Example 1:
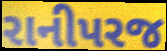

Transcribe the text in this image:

રાનીપરજ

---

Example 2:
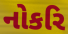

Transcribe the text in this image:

નોકરિ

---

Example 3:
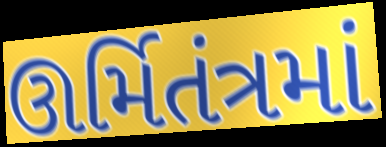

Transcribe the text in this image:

ઊર્મિતંત્રમાં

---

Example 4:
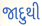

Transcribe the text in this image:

જાદુથી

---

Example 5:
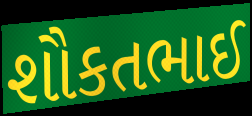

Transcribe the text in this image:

શૌકતભાઈ